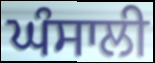
ਘੰਸਾਲੀ